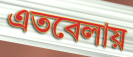
এতবেলায়